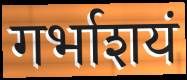
गर्भाशयं